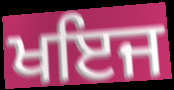
ਖਇਜ